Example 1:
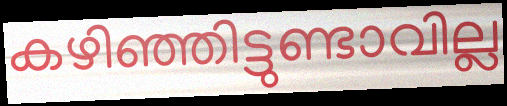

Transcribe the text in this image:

കഴിഞ്ഞിട്ടുണ്ടാവില്ല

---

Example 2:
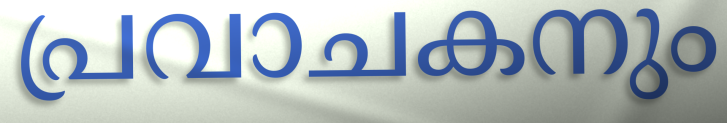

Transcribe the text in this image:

പ്രവാചകനും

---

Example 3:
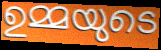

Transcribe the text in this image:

ഉമ്മയുടെ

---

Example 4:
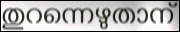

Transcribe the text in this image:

തുറന്നെഴുതാന്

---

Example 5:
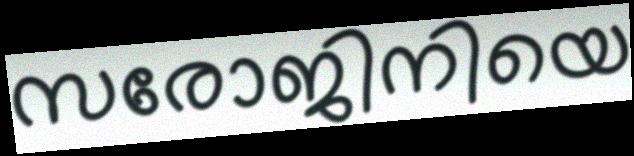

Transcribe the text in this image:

സരോജിനിയെ